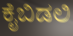
ಕೈಬಿಡಲಿ